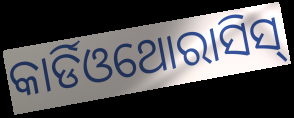
କାର୍ଡିଓଥୋରାସିସ୍